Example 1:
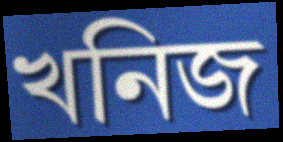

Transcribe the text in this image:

খনিজ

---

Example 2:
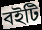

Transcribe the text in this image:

বইটি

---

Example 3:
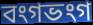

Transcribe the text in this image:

বংগভংগ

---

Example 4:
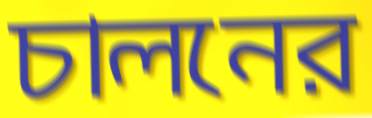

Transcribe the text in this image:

চালনের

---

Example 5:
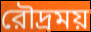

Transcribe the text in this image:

রৌদ্রময়